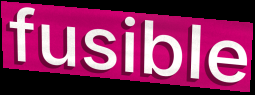
fusible